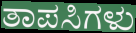
ತಾಪಸಿಗಳು